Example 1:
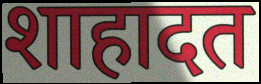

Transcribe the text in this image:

शाहादत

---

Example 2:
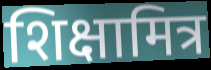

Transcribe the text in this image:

शिक्षामित्र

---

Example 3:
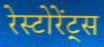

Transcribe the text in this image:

रेस्टोरेंट्स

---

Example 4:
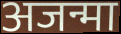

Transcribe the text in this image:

अजन्मा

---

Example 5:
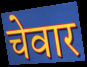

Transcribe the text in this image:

चेवार